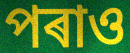
পৰাও